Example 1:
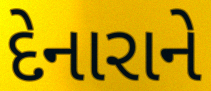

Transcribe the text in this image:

દેનારાને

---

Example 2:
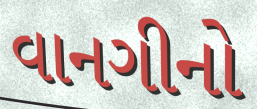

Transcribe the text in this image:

વાનગીનો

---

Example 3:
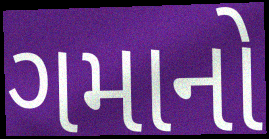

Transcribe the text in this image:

ગમાનો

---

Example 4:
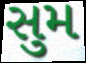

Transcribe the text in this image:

સુમ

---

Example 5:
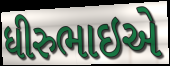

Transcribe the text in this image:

ધીરુભાઇએ